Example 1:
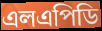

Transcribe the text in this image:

এলএপিডি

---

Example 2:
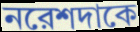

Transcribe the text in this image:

নরেশদাকে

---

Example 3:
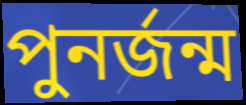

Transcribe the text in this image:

পুনর্জন্ম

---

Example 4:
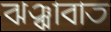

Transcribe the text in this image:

ঝঞ্ঝাবাত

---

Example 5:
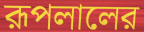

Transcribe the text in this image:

রূপলালের